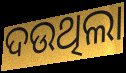
ଦଉଥିଲା